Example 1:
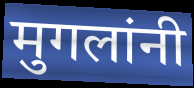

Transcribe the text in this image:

मुगलांनी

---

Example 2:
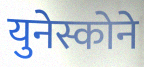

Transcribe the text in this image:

युनेस्कोने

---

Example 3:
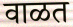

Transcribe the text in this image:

वाळत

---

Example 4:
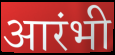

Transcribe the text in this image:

आरंभी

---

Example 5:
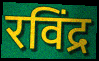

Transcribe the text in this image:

रविंद्र